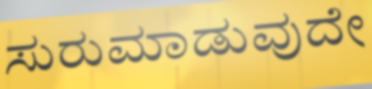
ಸುರುಮಾಡುವುದೇ